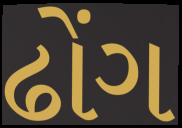
ઢોંગ